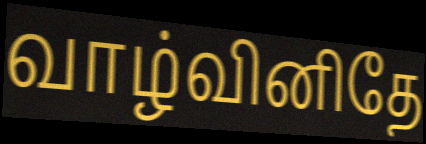
வாழ்வினிதே